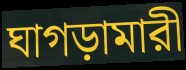
ঘাগড়ামারী